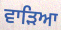
ਵਾੜਿਆ